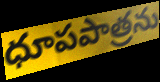
ధూపపాత్రను